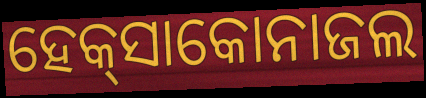
ହେକ୍‌ସାକୋନାଜଲ